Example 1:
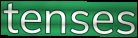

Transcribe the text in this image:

tenses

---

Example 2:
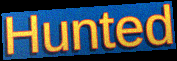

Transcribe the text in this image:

Hunted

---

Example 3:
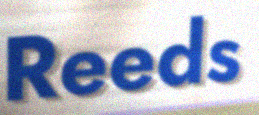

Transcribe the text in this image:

Reeds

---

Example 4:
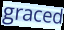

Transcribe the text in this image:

graced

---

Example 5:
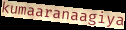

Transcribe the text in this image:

kumaaranaagiya